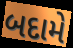
બદામે